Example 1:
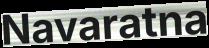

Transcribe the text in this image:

Navaratna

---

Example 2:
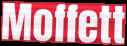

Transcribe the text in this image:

Moffett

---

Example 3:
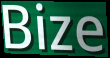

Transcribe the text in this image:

Bize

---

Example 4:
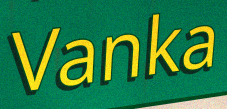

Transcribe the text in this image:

Vanka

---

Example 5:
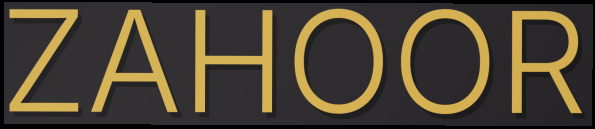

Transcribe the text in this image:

ZAHOOR